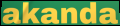
akanda